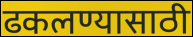
ढकलण्यासाठी